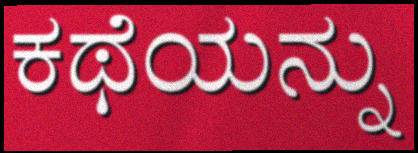
ಕಥೆಯನ್ನು